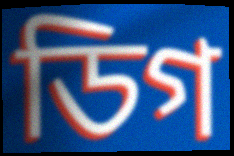
ডিগ